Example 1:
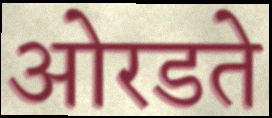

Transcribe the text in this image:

ओरडते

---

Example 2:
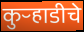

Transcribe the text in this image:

कुऱ्हाडीचे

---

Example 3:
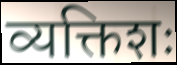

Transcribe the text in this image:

व्यक्तिशः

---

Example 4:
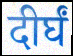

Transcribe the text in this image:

दीर्घं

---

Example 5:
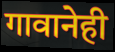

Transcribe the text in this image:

गावानेही